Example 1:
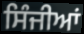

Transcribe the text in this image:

ਸਿੰਜੀਆਂ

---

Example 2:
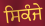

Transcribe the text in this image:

ਸਿਕੰਜੇ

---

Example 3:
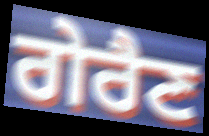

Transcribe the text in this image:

ਗੇਰੈਣ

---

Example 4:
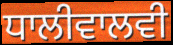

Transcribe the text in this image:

ਧਾਲੀਵਾਲਵੀ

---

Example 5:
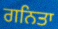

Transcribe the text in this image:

ਗਨਿਤਾ